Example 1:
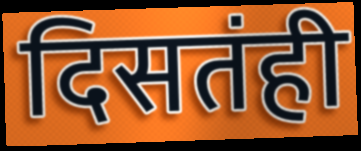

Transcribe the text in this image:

दिसतंही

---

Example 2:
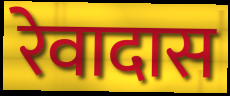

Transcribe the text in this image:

रेवादास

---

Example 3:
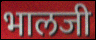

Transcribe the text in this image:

भालजी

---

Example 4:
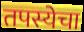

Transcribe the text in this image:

तपस्येचा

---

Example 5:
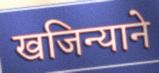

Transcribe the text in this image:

खजिन्याने